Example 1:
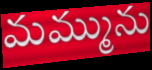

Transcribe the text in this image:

మమ్మును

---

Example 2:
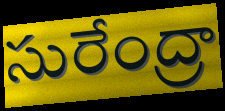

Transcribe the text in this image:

సురేంద్రా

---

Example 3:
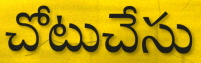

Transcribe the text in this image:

చోటుచేసు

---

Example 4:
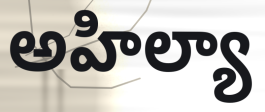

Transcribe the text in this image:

అహిల్యా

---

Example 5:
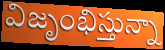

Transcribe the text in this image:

విజృంభిస్తున్నా